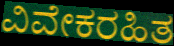
ವಿವೇಕರಹಿತ